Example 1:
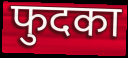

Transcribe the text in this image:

फुदका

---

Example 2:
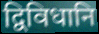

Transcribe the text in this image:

द्विविधानि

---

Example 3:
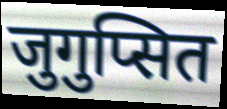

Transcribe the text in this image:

जुगुप्सित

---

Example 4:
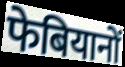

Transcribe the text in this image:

फेबियानों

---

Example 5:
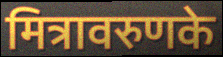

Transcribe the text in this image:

मित्रावरुणके